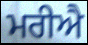
ਮਰੀਐ